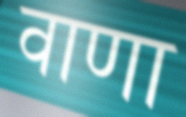
वाणा